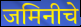
जमिनीचे